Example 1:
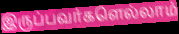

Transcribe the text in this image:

இருப்பவர்களெல்லாம்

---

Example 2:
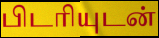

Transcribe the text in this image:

பிடரியுடன்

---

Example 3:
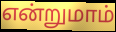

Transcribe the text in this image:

என்றுமாம்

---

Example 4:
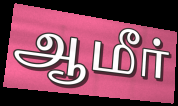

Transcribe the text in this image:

ஆமீர்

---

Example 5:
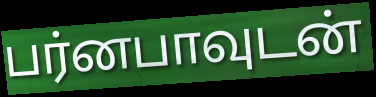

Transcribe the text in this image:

பர்னபாவுடன்